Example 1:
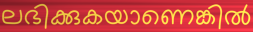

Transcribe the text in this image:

ലഭിക്കുകയാണെങ്കിൽ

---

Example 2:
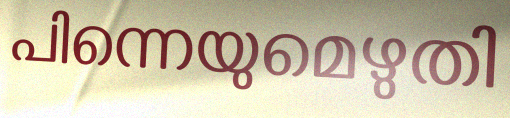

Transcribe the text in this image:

പിന്നെയുമെഴുതി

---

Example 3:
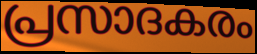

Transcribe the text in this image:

പ്രസാദകരം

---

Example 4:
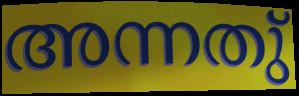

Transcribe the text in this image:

അന്നതു്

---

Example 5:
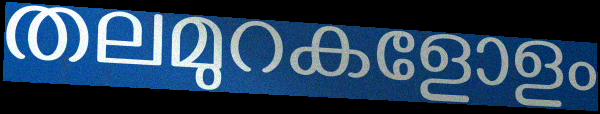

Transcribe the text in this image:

തലമുറകളോളം